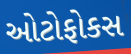
ઓટોફોકસ